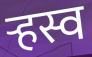
र्‍हस्व